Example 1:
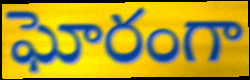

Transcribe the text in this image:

ఘోరంగా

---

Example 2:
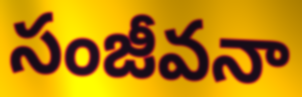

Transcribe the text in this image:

సంజీవనా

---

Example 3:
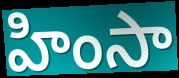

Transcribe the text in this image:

హింసా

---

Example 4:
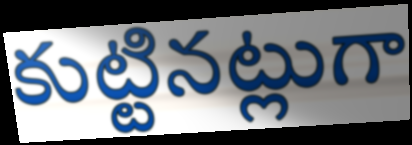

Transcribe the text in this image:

కుట్టినట్లుగా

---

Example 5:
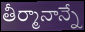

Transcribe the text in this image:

తీర్మానాన్నే